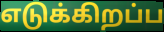
எடுக்கிறப்ப